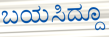
ಬಯಸಿದ್ದೂ